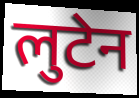
लुटेन